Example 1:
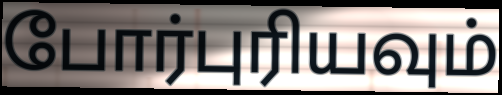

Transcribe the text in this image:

போர்புரியவும்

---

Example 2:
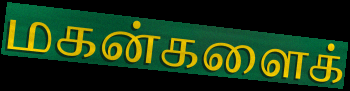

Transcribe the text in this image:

மகன்களைக்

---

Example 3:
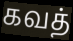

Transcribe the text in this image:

கவத்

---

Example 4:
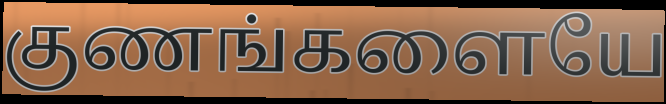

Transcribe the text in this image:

குணங்களையே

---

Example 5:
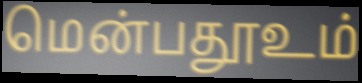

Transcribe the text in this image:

மென்பதூஉம்